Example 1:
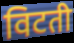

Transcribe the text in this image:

विटती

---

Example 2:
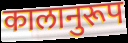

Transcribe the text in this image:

कालानुरूप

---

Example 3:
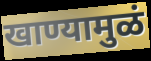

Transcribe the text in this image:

खाण्यामुळं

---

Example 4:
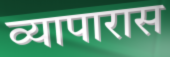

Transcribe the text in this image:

व्यापारास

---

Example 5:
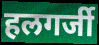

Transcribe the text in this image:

हलगर्जी